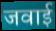
जवाई